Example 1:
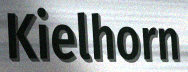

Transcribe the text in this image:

Kielhorn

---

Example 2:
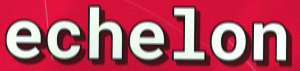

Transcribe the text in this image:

echelon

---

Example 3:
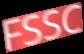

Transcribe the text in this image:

FSSC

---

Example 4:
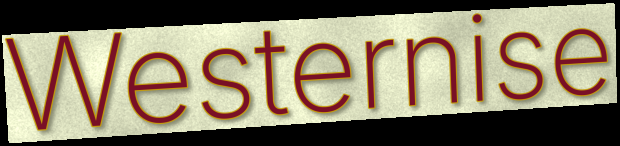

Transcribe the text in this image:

Westernise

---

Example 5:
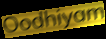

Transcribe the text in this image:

Oodhiyam